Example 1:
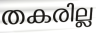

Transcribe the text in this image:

തകരില്ല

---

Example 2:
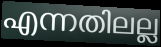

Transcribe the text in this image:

എന്നതിലല്ല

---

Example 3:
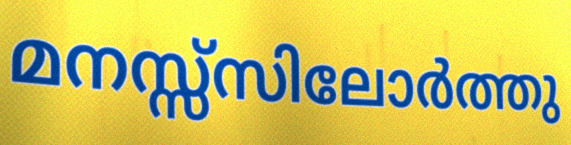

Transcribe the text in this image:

മനസ്സ്സിലോർത്തു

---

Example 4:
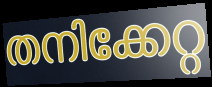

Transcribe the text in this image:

തനിക്കേറ്റ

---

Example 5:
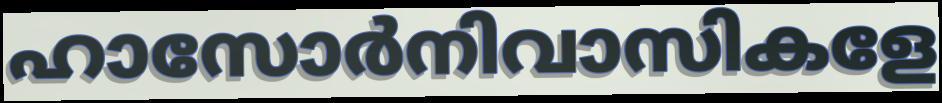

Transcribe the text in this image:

ഹാസോർനിവാസികളേ